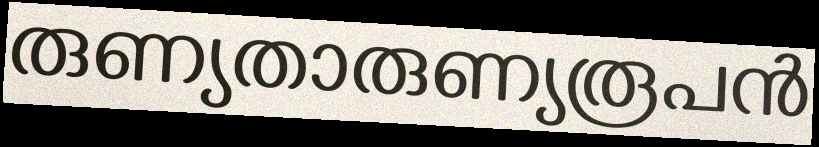
രുണ്യതാരുണ്യരൂപൻ